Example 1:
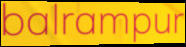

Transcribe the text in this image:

balrampur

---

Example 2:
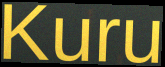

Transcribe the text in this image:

Kuru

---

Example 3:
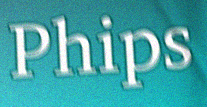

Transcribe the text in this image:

Phips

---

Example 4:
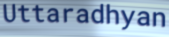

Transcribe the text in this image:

Uttaradhyan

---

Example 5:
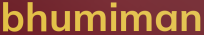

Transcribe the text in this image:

bhumiman